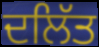
ਦਲਿੱਤ